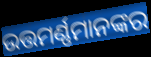
ଉତ୍ତମର୍ଣ୍ଣମାନଙ୍କର